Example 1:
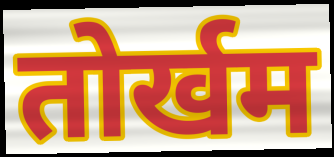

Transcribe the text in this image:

तोर्खम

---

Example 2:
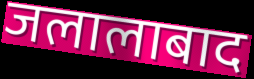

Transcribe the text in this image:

जलालाबाद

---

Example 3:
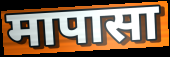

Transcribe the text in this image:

मापासा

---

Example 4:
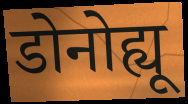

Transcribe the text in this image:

डोनोह्यू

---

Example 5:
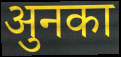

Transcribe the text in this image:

अुनका